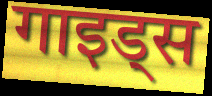
गाइड्स